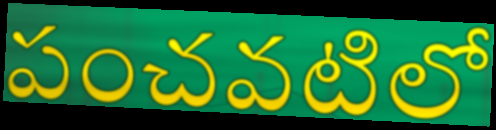
పంచవటిలో